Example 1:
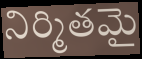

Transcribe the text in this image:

నిర్మితమై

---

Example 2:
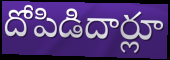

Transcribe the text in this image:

దోపిడిదార్లూ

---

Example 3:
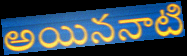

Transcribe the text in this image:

అయిననాటి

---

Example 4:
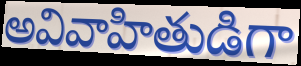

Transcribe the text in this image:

అవివాహితుడిగా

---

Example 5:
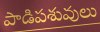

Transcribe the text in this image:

పాడిపశువులు